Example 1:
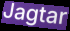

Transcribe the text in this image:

Jagtar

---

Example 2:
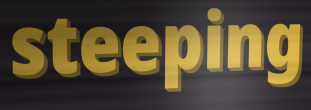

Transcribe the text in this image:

steeping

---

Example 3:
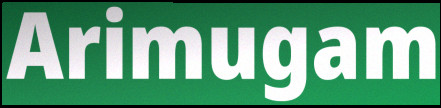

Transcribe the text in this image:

Arimugam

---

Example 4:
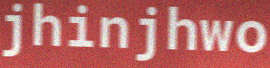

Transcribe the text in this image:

jhinjhwo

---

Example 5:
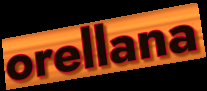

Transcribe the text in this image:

orellana